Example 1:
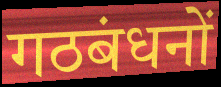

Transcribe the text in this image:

गठबंधनों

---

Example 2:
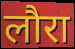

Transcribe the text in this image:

लौरा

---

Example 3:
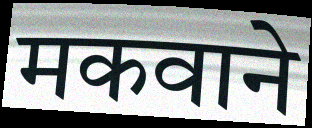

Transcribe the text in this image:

मकवाने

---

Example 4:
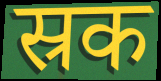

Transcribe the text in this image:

स्रक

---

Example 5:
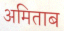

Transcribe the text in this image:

अमिताब